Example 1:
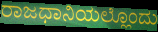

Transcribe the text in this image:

ರಾಜಧಾನಿಯಲ್ಲೊಂದು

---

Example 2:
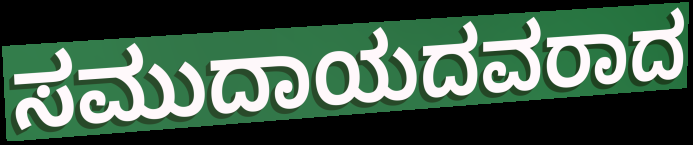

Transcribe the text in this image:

ಸಮುದಾಯದವರಾದ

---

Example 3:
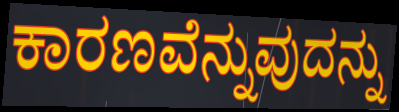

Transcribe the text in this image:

ಕಾರಣವೆನ್ನುವುದನ್ನು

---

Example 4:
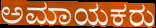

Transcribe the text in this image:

ಅಮಾಯಕರು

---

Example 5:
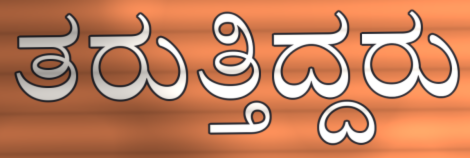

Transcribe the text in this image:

ತರುತ್ತಿದ್ದರು